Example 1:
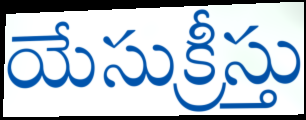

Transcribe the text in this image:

యేసుక్రీస్తు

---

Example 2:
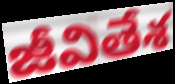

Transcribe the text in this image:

జీవితేశ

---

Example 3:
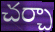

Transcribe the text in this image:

చర్చా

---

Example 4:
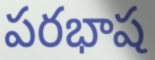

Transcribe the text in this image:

పరభాష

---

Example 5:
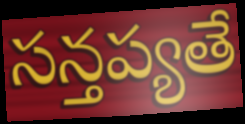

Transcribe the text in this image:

సన్తప్యతే